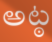
అట్ఠ